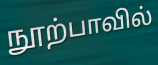
நூற்பாவில்